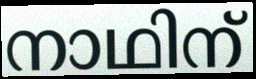
നാഥിന്